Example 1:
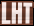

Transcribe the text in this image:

LHT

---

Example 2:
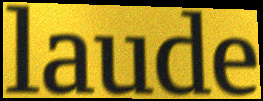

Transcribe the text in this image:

laude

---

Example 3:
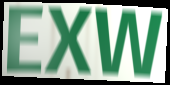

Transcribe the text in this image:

EXW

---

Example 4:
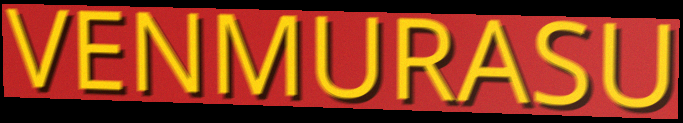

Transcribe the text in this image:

VENMURASU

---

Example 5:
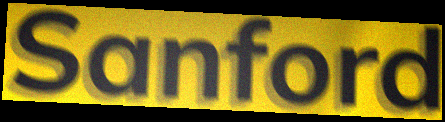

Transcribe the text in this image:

Sanford